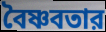
বৈষ্ণবতার